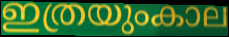
ഇത്രയുംകാല